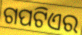
ଗପଟିଏର